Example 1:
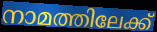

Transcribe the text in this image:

നാമത്തിലേക്ക്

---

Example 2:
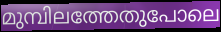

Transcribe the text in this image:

മുമ്പിലത്തേതുപോലെ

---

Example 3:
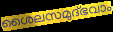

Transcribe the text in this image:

ശൈലസമുദ്ഭവാം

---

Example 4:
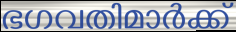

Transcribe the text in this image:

ഭഗവതിമാർക്ക്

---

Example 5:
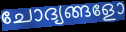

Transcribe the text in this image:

ചോദ്യങ്ങളോ